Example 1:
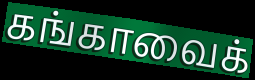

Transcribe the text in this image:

கங்காவைக்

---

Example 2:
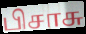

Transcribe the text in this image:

பிசாசு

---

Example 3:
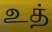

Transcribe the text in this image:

உத்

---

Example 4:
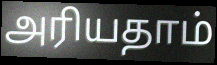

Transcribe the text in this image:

அரியதாம்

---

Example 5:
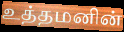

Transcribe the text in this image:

உத்தமனின்